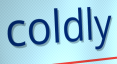
coldly